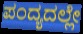
ಪಂದ್ಯದಲ್ಲೇ